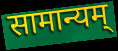
सामान्यम्